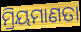
ମ୍ରିୟମାଣତା